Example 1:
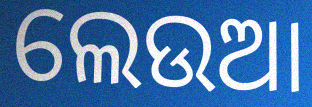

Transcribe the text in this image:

ଲେଉଆ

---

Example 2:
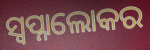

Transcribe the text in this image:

ସ୍ୱପ୍ନାଲୋକର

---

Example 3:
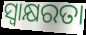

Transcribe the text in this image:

ସ୍ବାକ୍ଷରତା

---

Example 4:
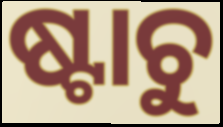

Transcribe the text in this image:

ଷ୍ଟାଚୁ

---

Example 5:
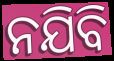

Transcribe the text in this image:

ନଯିବି